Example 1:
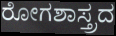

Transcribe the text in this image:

ರೋಗಶಾಸ್ತ್ರದ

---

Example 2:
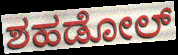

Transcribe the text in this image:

ಶಹಡೋಲ್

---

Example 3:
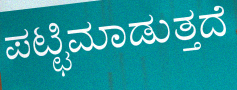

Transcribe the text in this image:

ಪಟ್ಟಿಮಾಡುತ್ತದೆ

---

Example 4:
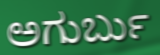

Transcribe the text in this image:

ಅಗುರ್ಬು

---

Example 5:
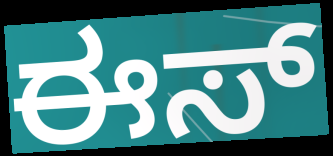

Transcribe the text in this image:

ಈಸ್